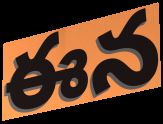
ఈన